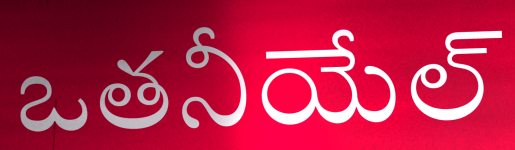
ఒతనీయేల్